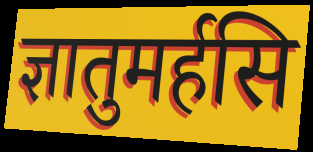
ज्ञातुमर्हसि